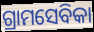
ଗ୍ରାମସେବିକା